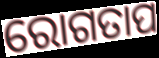
ରୋଗତାପ